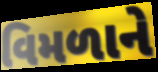
વિમળાને